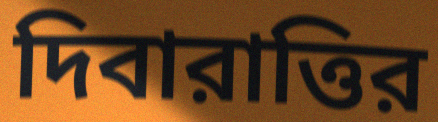
দিবারাত্তির